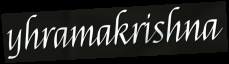
yhramakrishna